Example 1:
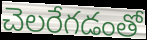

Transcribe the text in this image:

చెలరేగడంతో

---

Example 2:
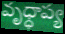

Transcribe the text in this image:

వృధ్ధాప్య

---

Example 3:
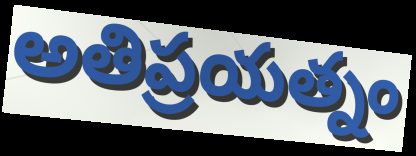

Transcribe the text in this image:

అతిప్రయత్నం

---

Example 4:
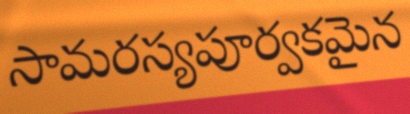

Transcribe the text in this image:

సామరస్యపూర్వకమైన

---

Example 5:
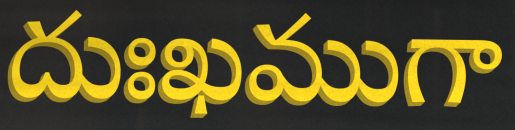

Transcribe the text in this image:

దుఃఖముగా